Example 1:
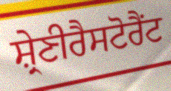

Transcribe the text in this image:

ਸ਼੍ਰੇਣੀਰੈਸਟੋਰੈਂਟ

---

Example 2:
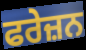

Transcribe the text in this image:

ਫਰੇਜ਼ਨ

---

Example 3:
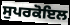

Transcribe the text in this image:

ਸੁਪਰਕੋਇਲ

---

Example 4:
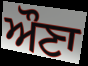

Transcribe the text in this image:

ਔਣਾ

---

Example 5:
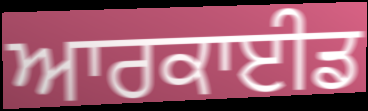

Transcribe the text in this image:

ਆਰਕਾਈਡ